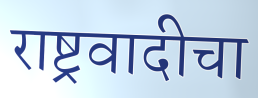
राष्ट्रवादीचा